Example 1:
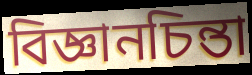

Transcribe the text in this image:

বিজ্ঞানচিন্তা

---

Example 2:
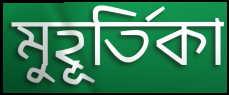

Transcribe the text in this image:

মুহূর্তিকা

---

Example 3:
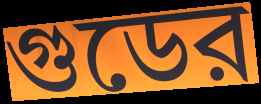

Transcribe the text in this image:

গুডের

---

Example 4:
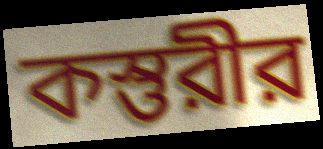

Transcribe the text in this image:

কস্তুরীর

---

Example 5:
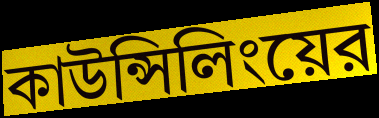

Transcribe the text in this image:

কাউন্সিলিংয়ের